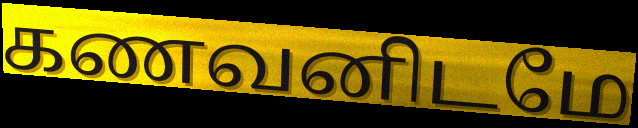
கணவனிடமே